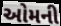
ઓમની